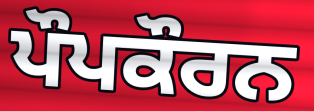
ਪੌਪਕੌਰਨ